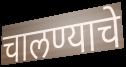
चालण्याचे